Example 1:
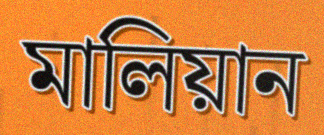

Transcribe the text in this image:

মালিয়ান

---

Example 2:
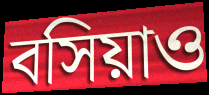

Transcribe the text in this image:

বসিয়াও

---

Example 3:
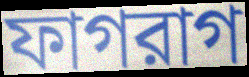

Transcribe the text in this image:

ফাগরাগ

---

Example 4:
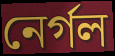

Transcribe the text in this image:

নের্গল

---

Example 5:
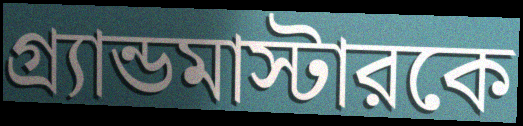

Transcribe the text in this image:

গ্র্যান্ডমাস্টারকে